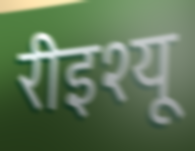
रीइश्यू